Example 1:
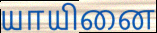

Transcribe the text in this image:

யாயினை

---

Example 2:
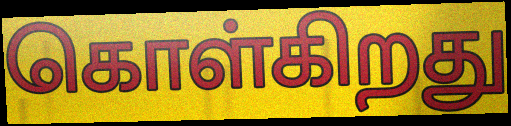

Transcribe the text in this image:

கொள்கிறது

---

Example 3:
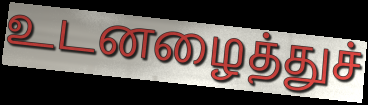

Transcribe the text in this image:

உடனழைத்துச்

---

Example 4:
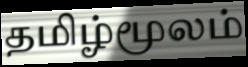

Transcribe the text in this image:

தமிழ்மூலம்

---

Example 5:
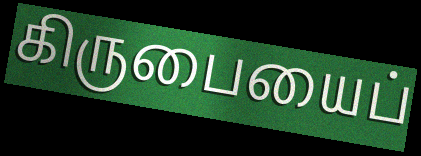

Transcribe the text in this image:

கிருபையைப்